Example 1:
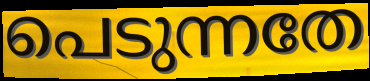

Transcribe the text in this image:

പെടുന്നതേ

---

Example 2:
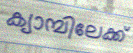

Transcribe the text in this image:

ക്യാമ്പിലേക്ക്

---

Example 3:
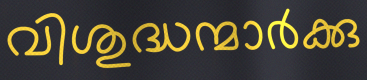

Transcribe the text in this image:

വിശുദ്ധന്മാർക്കു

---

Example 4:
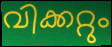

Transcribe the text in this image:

വിക്കറ്റും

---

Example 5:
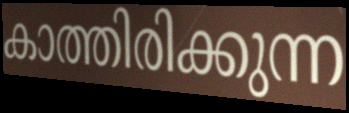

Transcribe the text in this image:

കാത്തിരിക്കുന്ന